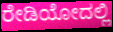
ರೇಡಿಯೋದಲ್ಲಿ